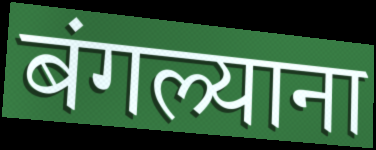
बंगल्याना